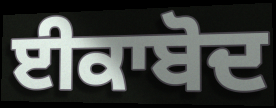
ਈਕਾਬੋਦ